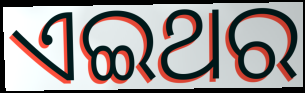
ଏଇଥର